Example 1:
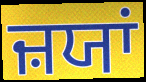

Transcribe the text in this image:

ਜ਼ਯਾਂ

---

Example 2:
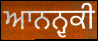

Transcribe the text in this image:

ਆਨਨ੍ਦਕੀ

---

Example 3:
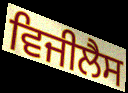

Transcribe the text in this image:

ਵਿਜੀਲੈਸ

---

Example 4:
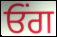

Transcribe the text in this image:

ਓਂਗ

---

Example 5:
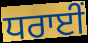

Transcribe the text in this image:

ਧਰਾਈਂ